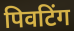
पिवटिंग